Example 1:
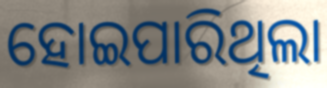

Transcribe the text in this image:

ହୋଇପାରିଥିଲା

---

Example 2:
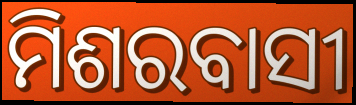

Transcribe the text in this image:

ମିଶରବାସୀ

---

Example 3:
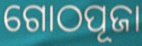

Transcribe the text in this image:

ଗୋଠପୂଜା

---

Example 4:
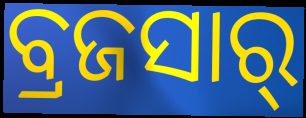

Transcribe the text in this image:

ବ୍ରଜସାର୍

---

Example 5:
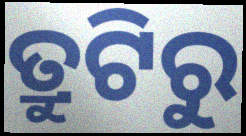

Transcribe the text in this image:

ତ୍ରୁଟିରୁ